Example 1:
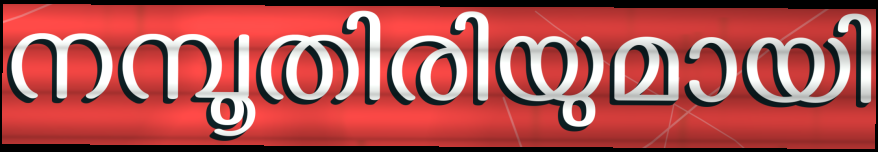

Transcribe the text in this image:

നമ്പൂതിരിയുമായി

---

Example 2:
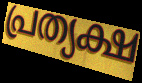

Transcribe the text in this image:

പ്രത്യക്ഷ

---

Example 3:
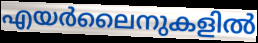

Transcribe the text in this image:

എയർലൈനുകളിൽ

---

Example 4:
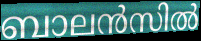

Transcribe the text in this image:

ബാലൻസിൽ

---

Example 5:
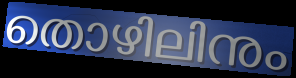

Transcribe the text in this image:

തൊഴിലിനും